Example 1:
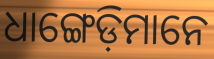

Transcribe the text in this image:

ଧାଙ୍ଗେଡ଼ିମାନେ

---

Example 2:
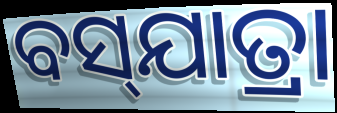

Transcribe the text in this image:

ବସ୍‌ଯାତ୍ରା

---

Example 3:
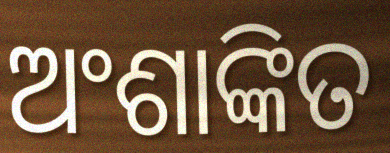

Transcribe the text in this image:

ଅଂଶାଙ୍କିତ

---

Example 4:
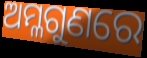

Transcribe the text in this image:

ଅମ୍ଳଗୁଣରେ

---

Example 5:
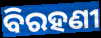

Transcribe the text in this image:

ବିରହଣୀ